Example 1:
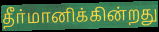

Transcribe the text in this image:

தீர்மானிக்கின்றது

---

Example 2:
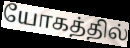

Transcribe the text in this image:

யோகத்தில்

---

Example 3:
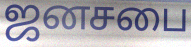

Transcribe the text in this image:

ஜனசபை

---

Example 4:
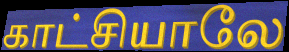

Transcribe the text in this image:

காட்சியாலே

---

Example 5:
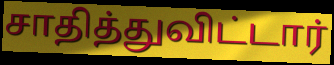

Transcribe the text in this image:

சாதித்துவிட்டார்